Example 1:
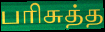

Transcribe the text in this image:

பரிசுத்த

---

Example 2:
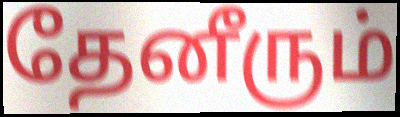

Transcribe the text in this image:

தேனீரும்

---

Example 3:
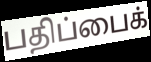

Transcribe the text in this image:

பதிப்பைக்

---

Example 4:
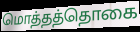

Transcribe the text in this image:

மொத்தத்தொகை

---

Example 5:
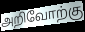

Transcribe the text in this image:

அறிவோற்கு